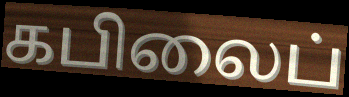
கபிலைப்